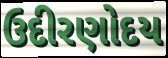
ઉદીરણોદય